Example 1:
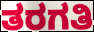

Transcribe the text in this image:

ತರಗತಿ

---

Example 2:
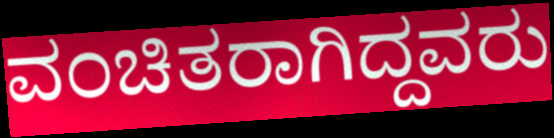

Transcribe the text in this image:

ವಂಚಿತರಾಗಿದ್ದವರು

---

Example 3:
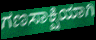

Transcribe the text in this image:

ಗಣಸಾಕ್ಷಿಯಾಗಿ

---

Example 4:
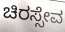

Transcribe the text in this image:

ಚಿರಸ್ಸೇವ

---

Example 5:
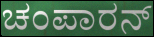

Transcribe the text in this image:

ಚಂಪಾರನ್